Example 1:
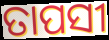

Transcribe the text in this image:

ତାପସୀ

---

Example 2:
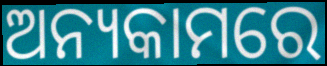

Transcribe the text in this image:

ଅନ୍ୟକାମରେ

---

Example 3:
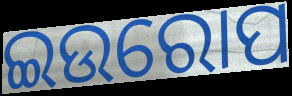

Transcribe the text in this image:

ଇଉରୋପ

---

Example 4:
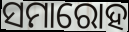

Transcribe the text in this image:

ସମାରୋହ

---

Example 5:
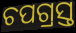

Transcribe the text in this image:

ଚପଗ୍ରସ୍ତ